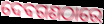
ଦେବଗଣଠାରେ